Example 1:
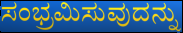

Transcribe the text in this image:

ಸಂಭ್ರಮಿಸುವುದನ್ನು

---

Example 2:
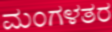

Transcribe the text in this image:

ಮಂಗಳತರ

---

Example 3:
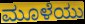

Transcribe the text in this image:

ಮೂಳೆಯು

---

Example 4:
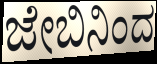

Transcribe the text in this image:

ಜೇಬಿನಿಂದ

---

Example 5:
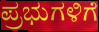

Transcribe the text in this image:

ಪ್ರಭುಗಳಿಗೆ